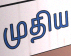
முதிய